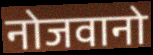
नोजवानो